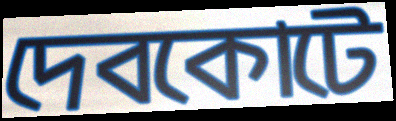
দেবকোটে